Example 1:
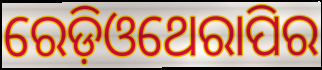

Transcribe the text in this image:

ରେଡ଼ିଓଥେରାପିର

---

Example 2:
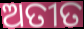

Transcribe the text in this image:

ଅତୀତ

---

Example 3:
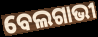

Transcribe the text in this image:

ବେଲଗାଭୀ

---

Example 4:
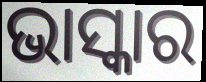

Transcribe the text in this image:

ଭାସ୍କାର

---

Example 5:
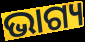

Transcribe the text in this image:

ଭାଗ୍ୟ